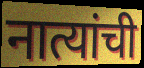
नात्यांची